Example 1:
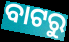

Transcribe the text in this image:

ବାଟରୁ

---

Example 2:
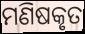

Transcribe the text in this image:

ମଣିଷକୃତ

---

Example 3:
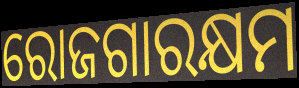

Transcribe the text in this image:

ରୋଜଗାରକ୍ଷମ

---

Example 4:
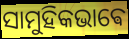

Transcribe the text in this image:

ସାମୁହିକଭାଵେ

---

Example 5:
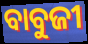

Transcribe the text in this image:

ବାବୁଜୀ